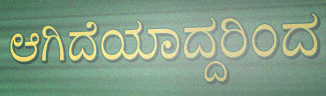
ಆಗಿದೆಯಾದ್ದರಿಂದ